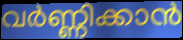
വർണ്ണിക്കാൻ